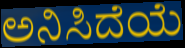
ಅನಿಸಿದೆಯೆ